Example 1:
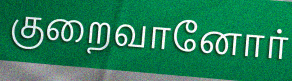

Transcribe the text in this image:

குறைவானோர்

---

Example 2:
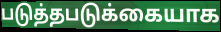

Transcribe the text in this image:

படுத்தபடுக்கையாக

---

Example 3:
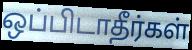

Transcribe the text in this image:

ஒப்பிடாதீர்கள்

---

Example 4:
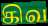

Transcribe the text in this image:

கிவ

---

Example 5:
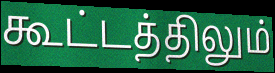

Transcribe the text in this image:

கூட்டத்திலும்